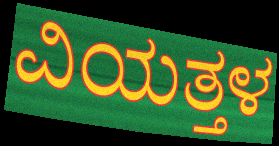
ವಿಯತ್ತಳ